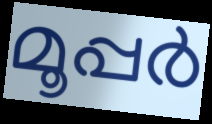
മൂപ്പർ